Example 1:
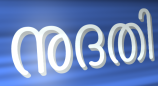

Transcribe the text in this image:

നുദതി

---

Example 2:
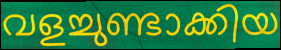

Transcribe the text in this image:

വളച്ചുണ്ടാക്കിയ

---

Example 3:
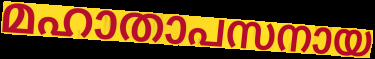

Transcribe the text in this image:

മഹാതാപസനായ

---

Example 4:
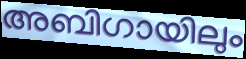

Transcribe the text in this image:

അബിഗായിലും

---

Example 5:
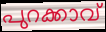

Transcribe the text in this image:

പുറക്കാവ്